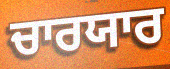
ਚਾਰਯਾਰ